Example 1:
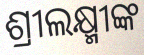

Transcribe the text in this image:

ଶ୍ରୀଲକ୍ଷ୍ମୀଙ୍କ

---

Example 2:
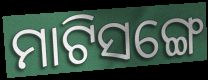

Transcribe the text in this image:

ମାଟିସଙ୍ଗେ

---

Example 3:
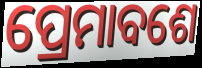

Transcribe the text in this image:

ପ୍ରେମାବଶେ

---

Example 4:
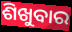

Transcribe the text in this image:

ଶିଖୁବାର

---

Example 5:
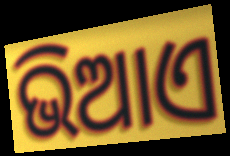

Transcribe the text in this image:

ଭିଆଏ